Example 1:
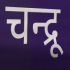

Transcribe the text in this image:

चन्द्रू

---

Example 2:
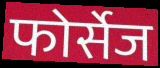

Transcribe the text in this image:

फोर्सेज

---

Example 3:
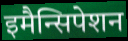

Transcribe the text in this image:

इमैन्सिपेशन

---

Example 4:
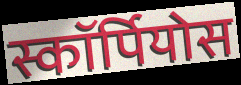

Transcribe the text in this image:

स्कॉर्पियोस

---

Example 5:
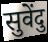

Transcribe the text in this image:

सुवेंदु